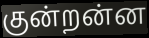
குன்றன்ன